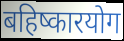
बहिष्कारयोग